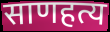
साणहत्य